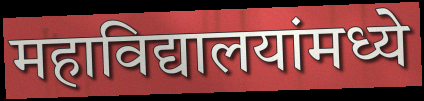
महाविद्यालयांमध्ये